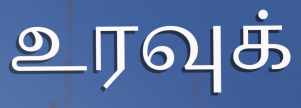
உரவுக்